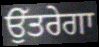
ਉੱਤਰੇਗਾ